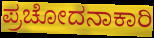
ಪ್ರಚೋದನಾಕಾರಿ